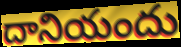
దానియందు